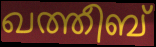
ഖത്തീബ്